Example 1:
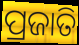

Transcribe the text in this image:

ପ୍ରଜାତି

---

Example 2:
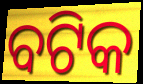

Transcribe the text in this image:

ବଟିକ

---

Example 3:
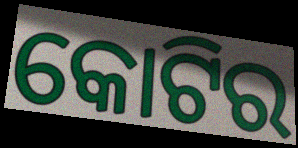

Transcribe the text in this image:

କୋଟିର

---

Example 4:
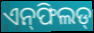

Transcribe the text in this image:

ଏନ୍‌ଫିଲଡ୍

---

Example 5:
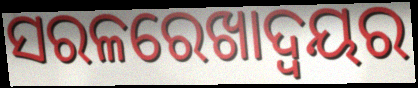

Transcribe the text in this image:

ସରଳରେଖାଦ୍ବୟର